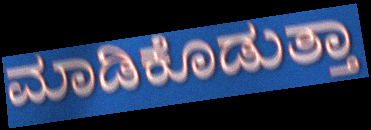
ಮಾಡಿಕೊಡುತ್ತಾ